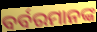
ବର୍ବରମାନଙ୍କ